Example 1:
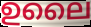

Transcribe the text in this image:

ഉലൈ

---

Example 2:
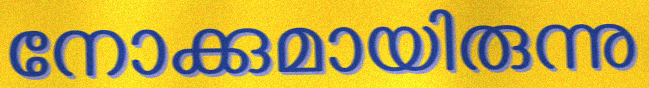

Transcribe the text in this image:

നോക്കുമായിരുന്നു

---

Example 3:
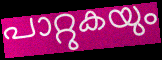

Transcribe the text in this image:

പാറ്റുകയും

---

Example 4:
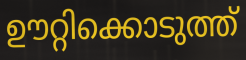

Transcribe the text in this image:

ഊറ്റിക്കൊടുത്ത്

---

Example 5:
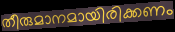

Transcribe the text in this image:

തീരുമാനമായിരിക്കണം